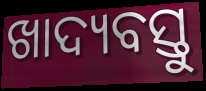
ଖାଦ୍ୟବସ୍ତୁ